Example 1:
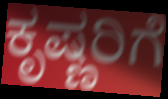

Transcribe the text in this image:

ಕೃಷ್ಣರಿಗೆ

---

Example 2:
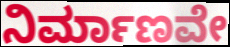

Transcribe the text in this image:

ನಿರ್ಮಾಣವೇ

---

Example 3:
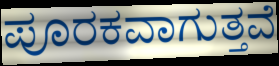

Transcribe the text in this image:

ಪೂರಕವಾಗುತ್ತವೆ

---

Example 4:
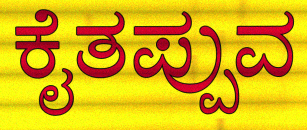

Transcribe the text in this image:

ಕೈತಪ್ಪುವ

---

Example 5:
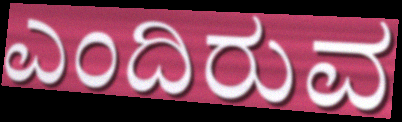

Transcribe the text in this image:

ಎಂದಿರುವ